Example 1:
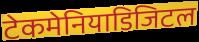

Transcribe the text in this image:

टेकमेनियाडिजिटल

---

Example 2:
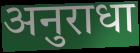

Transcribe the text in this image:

अनुराधा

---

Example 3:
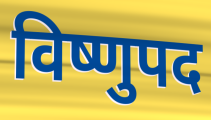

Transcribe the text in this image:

विष्णुपद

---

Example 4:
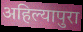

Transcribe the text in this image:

अहिल्यापुरा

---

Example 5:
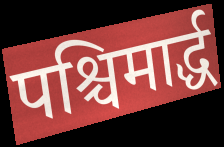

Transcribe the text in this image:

पश्चिमार्द्ध